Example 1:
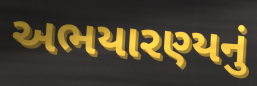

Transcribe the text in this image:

અભયારણ્યનું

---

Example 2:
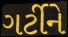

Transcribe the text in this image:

ગર્ટીને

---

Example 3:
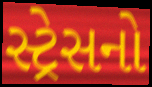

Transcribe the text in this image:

સ્ટ્રેસનો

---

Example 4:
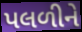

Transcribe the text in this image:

પલળીને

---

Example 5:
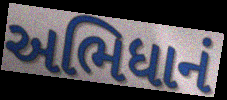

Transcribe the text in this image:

અભિધાનં